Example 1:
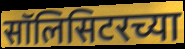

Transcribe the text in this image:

सॉलिसिटरच्या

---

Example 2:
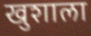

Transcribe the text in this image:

खुशाला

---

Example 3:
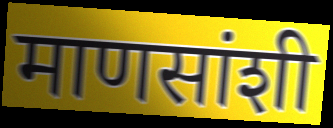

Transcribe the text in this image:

माणसांशी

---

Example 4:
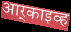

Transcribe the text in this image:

आर्काइव्ह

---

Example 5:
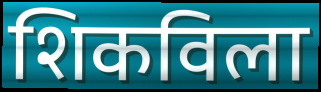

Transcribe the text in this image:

शिकविला